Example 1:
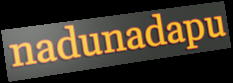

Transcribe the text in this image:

nadunadapu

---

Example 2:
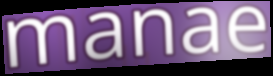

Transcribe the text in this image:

manae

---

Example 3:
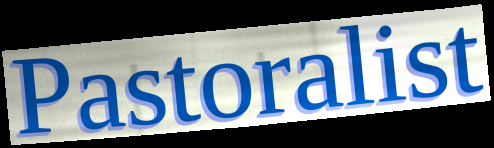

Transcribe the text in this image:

Pastoralist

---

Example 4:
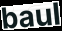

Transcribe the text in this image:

baul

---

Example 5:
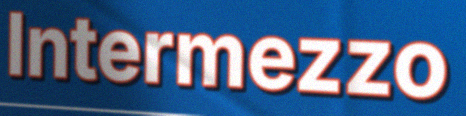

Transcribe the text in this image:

Intermezzo